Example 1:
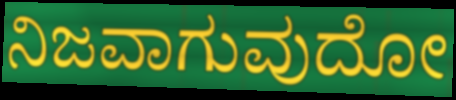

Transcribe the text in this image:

ನಿಜವಾಗುವುದೋ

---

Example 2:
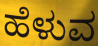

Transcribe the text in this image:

ಹೆಳುವ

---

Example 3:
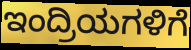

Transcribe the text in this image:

ಇಂದ್ರಿಯಗಳಿಗೆ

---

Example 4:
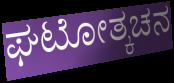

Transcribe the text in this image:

ಘಟೋತ್ಕಚನ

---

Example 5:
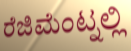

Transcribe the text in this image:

ರೆಜಿಮೆಂಟ್ನಲ್ಲಿ